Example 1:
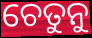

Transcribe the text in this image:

ଚେତୁନୁ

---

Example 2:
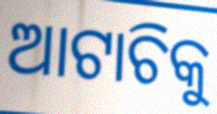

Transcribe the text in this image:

ଆଟାଚିକୁ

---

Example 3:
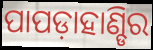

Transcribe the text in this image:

ପାପଡ଼ାହାଣ୍ଡିର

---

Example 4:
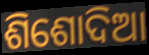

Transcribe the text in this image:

ଶିଶୋଦିଆ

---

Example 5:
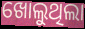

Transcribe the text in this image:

ଖୋଲୁଥିଲା